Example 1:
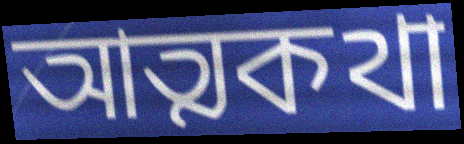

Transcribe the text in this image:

আত্মকথা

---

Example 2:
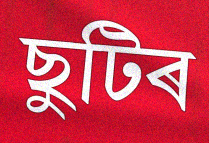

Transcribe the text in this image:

ছুটিৰ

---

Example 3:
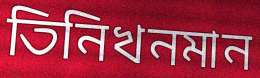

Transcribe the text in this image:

তিনিখনমান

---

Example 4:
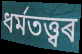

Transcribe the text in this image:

ধৰ্মতত্ত্বৰ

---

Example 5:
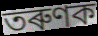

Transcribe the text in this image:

তৰুণক